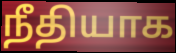
நீதியாக